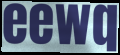
eewq